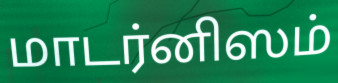
மாடர்னிஸம்